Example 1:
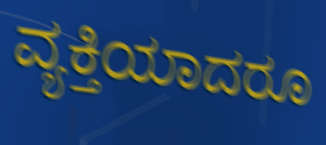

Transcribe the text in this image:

ವ್ಯಕ್ತಿಯಾದರೂ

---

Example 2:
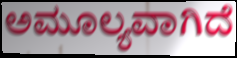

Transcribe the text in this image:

ಅಮೂಲ್ಯವಾಗಿದೆ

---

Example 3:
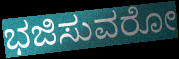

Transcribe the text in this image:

ಭಜಿಸುವರೋ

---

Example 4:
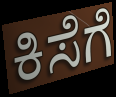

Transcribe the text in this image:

ಕಿಸೆಗೆ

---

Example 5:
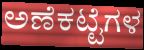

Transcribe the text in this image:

ಅಣೆಕಟ್ಟೆಗಳ